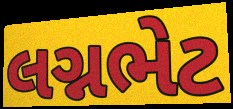
લગ્નભેટ